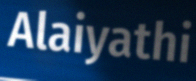
Alaiyathi